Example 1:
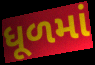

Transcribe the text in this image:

ધૂળમાં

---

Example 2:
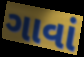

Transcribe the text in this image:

ગાવાં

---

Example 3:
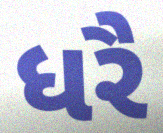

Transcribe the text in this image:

ધરૈ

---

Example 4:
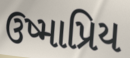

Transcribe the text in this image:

ઉષ્માપ્રિય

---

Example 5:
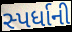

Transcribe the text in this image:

સ્પર્ધાની